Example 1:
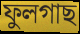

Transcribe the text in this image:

ফুলগাছ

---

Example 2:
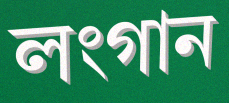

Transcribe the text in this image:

লংগান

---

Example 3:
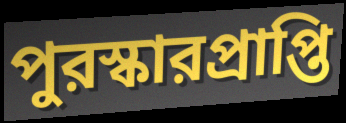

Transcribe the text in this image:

পুরস্কারপ্রাপ্তি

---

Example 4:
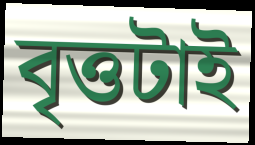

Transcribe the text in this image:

বৃত্তটাই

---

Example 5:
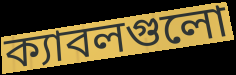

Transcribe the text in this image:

ক্যাবলগুলো